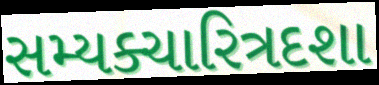
સમ્યક્ચારિત્રદશા